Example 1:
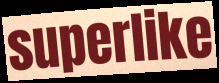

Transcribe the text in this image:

superlike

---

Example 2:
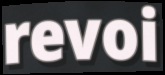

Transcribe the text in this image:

revoi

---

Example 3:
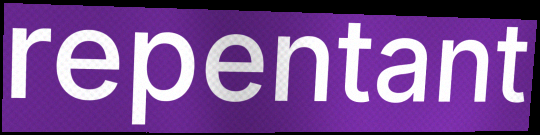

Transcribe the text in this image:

repentant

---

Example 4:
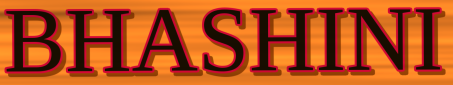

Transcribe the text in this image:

BHASHINI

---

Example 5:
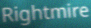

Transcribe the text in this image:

Rightmire